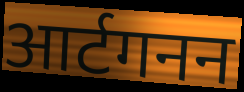
आर्टगनन